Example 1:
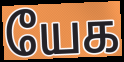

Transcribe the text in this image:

யேக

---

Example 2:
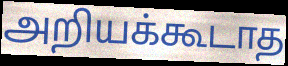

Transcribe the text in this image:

அறியக்கூடாத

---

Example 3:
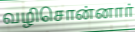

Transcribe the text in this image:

வழிசொன்னார்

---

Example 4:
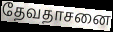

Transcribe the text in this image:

தேவதாசனை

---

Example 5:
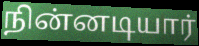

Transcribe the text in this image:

நின்னடியார்